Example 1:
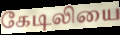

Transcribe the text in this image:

கேடிலியை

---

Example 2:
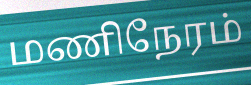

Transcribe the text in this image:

மணிநேரம்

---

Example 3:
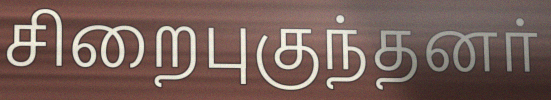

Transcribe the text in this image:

சிறைபுகுந்தனர்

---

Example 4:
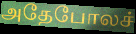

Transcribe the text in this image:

அதேபோலச்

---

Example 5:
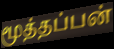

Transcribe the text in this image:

மூத்தப்பன்